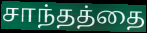
சாந்தத்தை